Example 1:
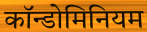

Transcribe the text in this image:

कॉन्डोमिनियम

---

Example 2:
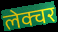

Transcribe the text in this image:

लेक्चर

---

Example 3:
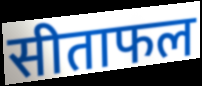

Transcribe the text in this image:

सीताफल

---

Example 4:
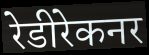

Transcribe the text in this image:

रेडीरेकनर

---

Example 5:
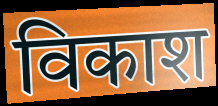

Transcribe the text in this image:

विकाश